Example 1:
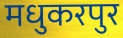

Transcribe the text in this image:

मधुकरपुर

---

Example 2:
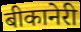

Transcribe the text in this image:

बीकानेरी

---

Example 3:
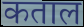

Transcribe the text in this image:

कताल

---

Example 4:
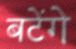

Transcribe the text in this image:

बटेंगे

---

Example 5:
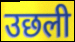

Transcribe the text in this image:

उछली